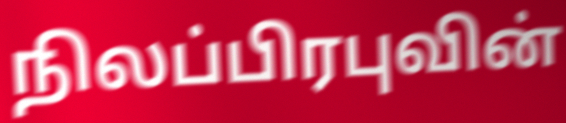
நிலப்பிரபுவின்